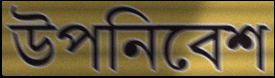
উপনিবেশ